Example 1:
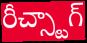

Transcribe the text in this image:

రీచ్స్టాగ్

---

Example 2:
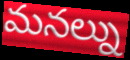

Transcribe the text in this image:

మనల్ను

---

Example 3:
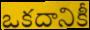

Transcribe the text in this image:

ఒకదానికీ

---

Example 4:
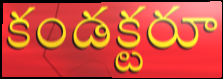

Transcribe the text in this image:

కండక్టరూ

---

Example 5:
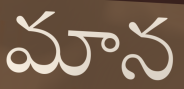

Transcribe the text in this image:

మాన